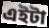
এইটা